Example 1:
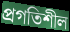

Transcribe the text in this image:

প্ৰগতিশীল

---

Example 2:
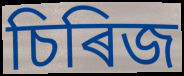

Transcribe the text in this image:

চিৰিজ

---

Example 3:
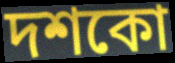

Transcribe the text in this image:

দশকো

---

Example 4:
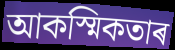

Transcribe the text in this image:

আকস্মিকতাৰ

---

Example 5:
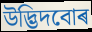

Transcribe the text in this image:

উদ্ভিদবোৰ